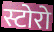
स्टोरो